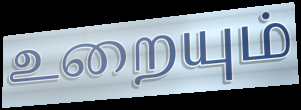
உறையும்